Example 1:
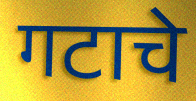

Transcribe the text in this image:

गटाचे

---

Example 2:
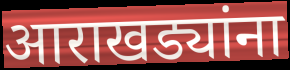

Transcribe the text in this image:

आराखड्यांना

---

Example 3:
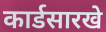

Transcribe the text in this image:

कार्डसारखे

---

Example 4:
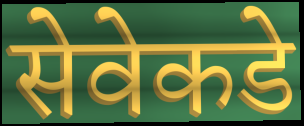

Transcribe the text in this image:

सेवेकडे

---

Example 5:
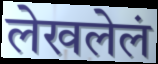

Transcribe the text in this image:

लेखलेलं